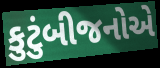
કુટુંબીજનોએ